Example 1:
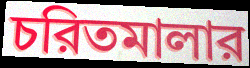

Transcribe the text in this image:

চরিতমালার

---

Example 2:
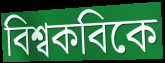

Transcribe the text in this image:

বিশ্বকবিকে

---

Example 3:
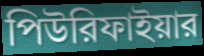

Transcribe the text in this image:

পিউরিফাইয়ার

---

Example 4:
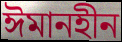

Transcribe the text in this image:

ঈমানহীন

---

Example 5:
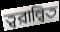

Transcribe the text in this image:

ত্বরান্বিত